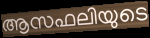
ആസഫലിയുടെ